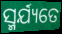
ସ୍ମର୍ଯ୍ୟତେ